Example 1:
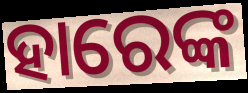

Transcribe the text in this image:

ହାରେଙ୍କ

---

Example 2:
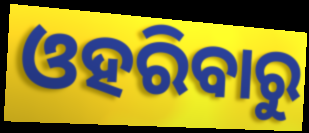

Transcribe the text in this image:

ଓହରିବାରୁ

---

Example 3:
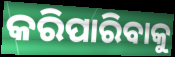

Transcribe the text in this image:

କରିପାରିବାକୁ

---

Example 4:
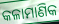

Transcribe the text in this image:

କଳାମାଣିକ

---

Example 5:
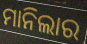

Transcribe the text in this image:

ମାନିଲାର